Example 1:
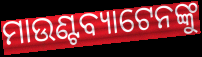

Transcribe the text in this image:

ମାଉଣ୍ଟବ୍ୟାଟେନଙ୍କୁ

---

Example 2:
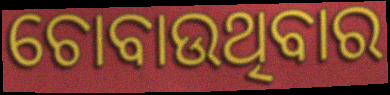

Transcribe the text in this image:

ଚୋବାଉଥିବାର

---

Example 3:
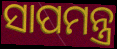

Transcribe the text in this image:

ସାପମନ୍ତ୍ର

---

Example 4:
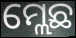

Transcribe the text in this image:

ମ୍ଲେଛ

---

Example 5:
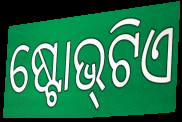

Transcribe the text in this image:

ଷ୍ଟୋଭ୍‌ଟିଏ